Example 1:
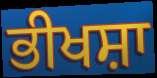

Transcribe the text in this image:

ਭੀਖਸ਼ਾ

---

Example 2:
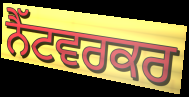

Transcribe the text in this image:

ਨੈੱਟਵਰਕਰ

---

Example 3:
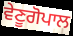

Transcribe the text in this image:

ਵੇਣੂਗੋਪਾਲ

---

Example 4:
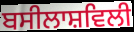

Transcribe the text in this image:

ਬਸੀਲਾਸ਼ਵਿਲੀ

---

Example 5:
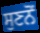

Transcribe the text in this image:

ਸੁਣਨੋਂ